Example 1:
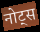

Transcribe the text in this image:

नोट्‌स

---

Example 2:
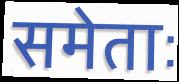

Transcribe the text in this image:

समेताः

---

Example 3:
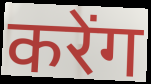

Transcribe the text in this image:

करेंग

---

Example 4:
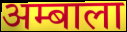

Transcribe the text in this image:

अम्‍बाला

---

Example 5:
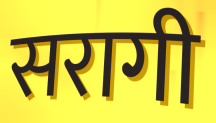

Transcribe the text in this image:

सरागी